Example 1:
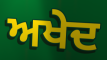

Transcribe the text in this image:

ਅਖੇਦ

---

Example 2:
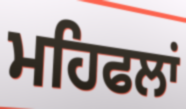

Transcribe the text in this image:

ਮਹਿਫਲਾਂ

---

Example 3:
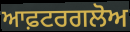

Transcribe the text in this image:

ਆਫ਼ਟਰਗਲੋਅ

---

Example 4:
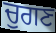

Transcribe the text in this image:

ਚੁਗਣ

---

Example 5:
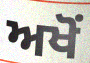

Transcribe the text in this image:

ਅਖੋਂ